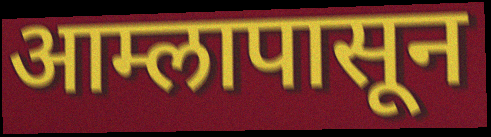
आम्लापासून